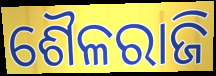
ଶୈଳରାଜି